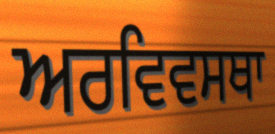
ਅਰਵਿਵਸਥਾ